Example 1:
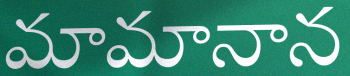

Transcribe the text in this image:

మామానాన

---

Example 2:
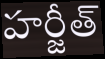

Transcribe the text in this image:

హర్జీత్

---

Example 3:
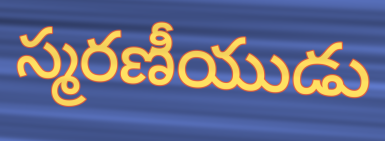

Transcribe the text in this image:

స్మరణీయుడు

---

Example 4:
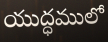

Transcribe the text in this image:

యుద్ధములో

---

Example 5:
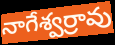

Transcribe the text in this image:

నాగేశ్వర్రావు